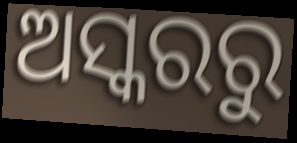
ଅସ୍କରରୁ